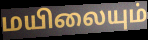
மயிலையும்